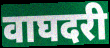
वाघदरी